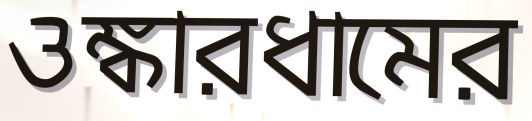
ওঙ্কারধামের